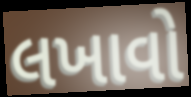
લખાવો